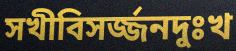
সখীবিসর্জ্জনদুঃখ